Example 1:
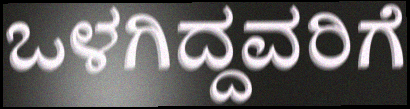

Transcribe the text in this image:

ಒಳಗಿದ್ದವರಿಗೆ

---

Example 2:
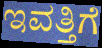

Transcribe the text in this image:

ಇವತ್ತಿಗೆ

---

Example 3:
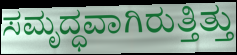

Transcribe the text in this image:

ಸಮೃದ್ಧವಾಗಿರುತ್ತಿತ್ತು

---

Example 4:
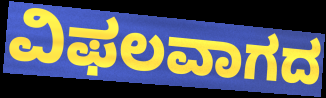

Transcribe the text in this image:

ವಿಫಲವಾಗದ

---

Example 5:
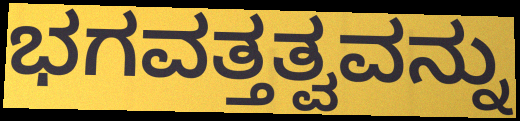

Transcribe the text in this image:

ಭಗವತ್ತತ್ವವನ್ನು